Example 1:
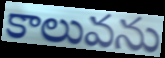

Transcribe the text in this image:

కాలువను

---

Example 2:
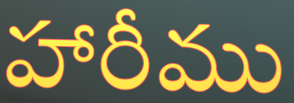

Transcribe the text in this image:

హారీము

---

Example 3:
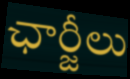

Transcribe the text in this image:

ఛార్జీలు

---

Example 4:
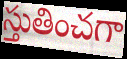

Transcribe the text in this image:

స్తుతించగా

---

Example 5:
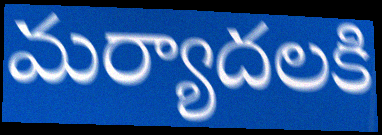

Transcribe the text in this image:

మర్యాదలకి